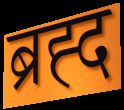
ब्रह्द